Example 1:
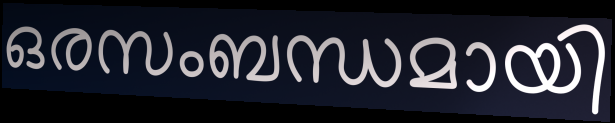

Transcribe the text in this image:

ഒരസംബന്ധമായി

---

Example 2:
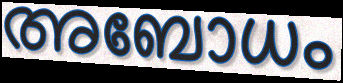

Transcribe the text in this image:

അബോധം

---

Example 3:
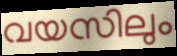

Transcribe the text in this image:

വയസിലും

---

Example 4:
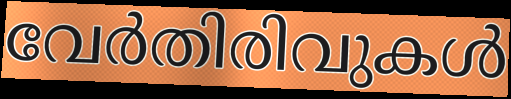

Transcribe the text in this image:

വേർതിരിവുകൾ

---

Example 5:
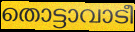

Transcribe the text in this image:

തൊട്ടാവാടീ